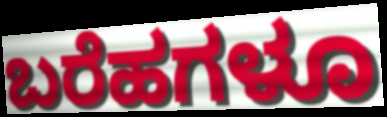
ಬರೆಹಗಳೂ